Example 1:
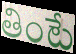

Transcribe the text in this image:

తింటే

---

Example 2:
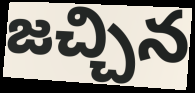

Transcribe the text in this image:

జచ్చిన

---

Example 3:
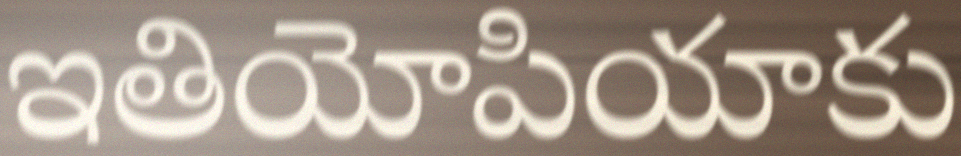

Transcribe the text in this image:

ఇతియోపియాకు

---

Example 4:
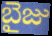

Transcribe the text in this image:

బైజు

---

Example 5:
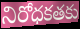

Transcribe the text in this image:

నిరోధకతకు